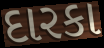
દારકા